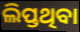
ଲିପ୍ତଥିବା